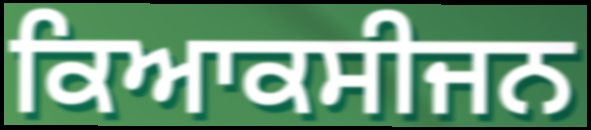
ਕਿਆਕਸੀਜਨ